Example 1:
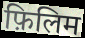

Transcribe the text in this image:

फ़िलिम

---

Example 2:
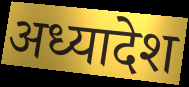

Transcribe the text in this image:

अध्यादेश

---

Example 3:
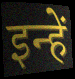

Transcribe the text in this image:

इन्हें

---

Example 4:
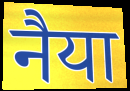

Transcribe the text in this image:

नैया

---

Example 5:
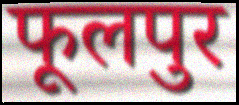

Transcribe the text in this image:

फूलपुर